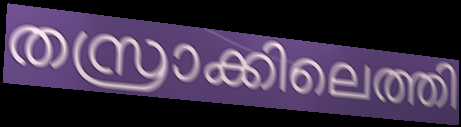
തസ്രാക്കിലെത്തി